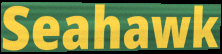
Seahawk